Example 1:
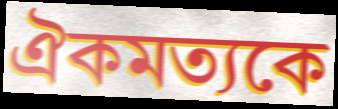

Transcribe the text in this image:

ঐকমত্যকে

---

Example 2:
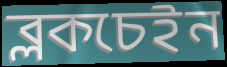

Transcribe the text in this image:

ব্লকচেইন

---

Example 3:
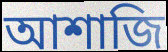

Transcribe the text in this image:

আশাজি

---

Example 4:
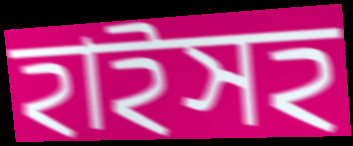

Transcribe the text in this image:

হাইসহ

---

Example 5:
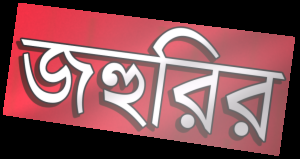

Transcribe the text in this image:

জহুরির